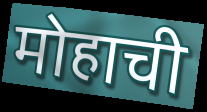
मोहाची